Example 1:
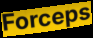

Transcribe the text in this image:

Forceps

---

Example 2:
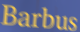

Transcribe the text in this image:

Barbus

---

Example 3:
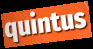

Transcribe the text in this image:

quintus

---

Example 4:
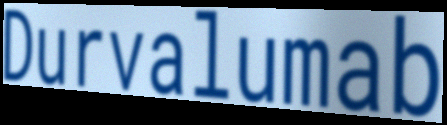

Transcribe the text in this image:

Durvalumab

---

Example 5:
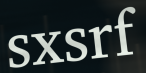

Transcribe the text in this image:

sxsrf